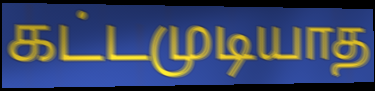
கட்டமுடியாத